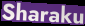
Sharaku